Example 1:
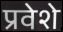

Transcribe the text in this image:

प्रवेशे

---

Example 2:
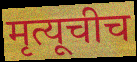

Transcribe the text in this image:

मृत्यूचीच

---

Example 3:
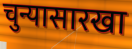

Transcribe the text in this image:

चुन्यासारखा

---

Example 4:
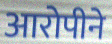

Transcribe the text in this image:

आरोपीने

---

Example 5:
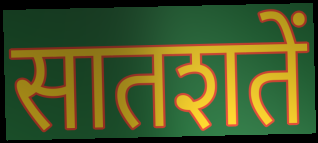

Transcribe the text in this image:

सातशतें